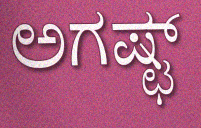
ಅಗಷ್ಟ್